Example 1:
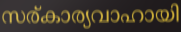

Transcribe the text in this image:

സര്കാര്യവാഹായി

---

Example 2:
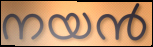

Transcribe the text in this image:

നയൻ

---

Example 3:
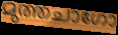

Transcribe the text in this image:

മുത്തചാഗോ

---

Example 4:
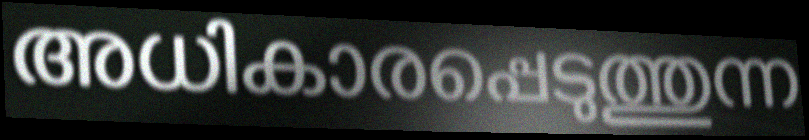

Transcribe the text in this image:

അധികാരപ്പെടുത്തുന്ന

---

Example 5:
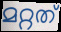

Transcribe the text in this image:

മറ്റത്